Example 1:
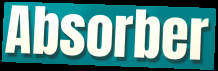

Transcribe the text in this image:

Absorber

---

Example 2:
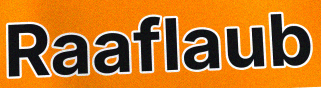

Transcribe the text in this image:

Raaflaub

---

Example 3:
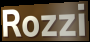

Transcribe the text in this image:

Rozzi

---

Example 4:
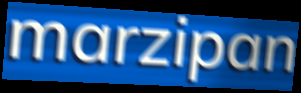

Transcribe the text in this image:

marzipan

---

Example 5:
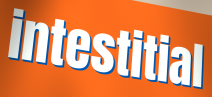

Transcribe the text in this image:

intestitial